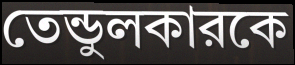
তেন্ডুলকারকে